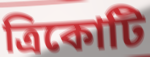
ত্রিকোটি